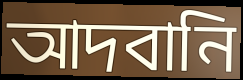
আদবানি